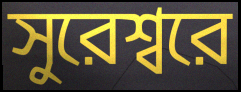
সুরেশ্বরে